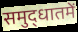
समुद्धातमें